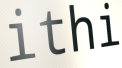
ithi